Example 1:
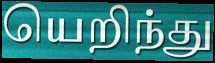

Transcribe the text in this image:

யெறிந்து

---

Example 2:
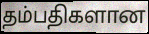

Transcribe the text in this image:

தம்பதிகளான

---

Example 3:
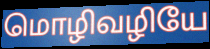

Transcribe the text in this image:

மொழிவழியே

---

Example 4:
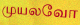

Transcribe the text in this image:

முயலவோ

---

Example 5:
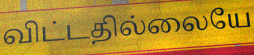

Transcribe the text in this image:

விட்டதில்லையே